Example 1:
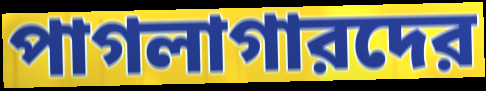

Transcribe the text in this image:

পাগলাগারদের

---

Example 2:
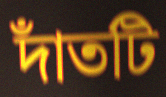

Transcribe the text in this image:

দাঁতটি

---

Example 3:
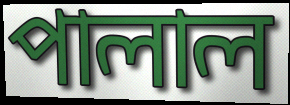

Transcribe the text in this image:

পালাল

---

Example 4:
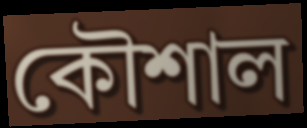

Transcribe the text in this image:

কৌশাল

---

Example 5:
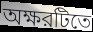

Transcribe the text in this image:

অক্ষরটিতে